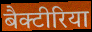
बैक्टीरिया